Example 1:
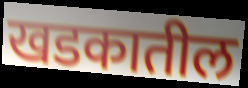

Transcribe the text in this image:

खडकातील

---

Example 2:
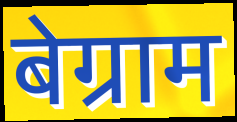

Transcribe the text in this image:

बेग्राम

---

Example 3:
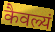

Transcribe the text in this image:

कैवल्यं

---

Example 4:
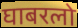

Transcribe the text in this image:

घाबरलो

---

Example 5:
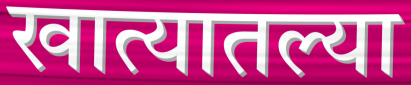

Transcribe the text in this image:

खात्यातल्या